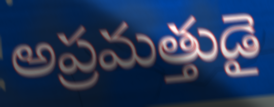
అప్రమత్తుడై